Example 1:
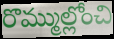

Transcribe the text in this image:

రొమ్ముల్లోంచి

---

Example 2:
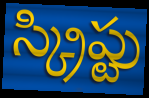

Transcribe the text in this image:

స్క్రిప్టు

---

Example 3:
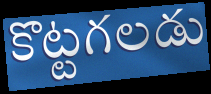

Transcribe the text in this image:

కొట్టగలడు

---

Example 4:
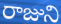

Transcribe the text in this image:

రాజుని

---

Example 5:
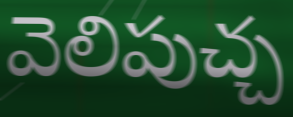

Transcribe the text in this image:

వెలిపుచ్చ